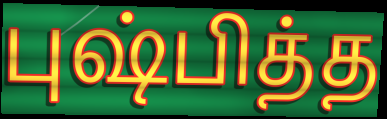
புஷ்பித்த